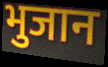
भुजान